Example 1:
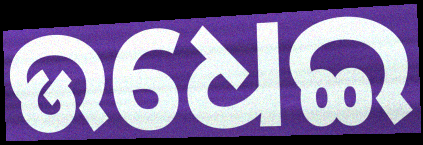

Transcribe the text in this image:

ଉଧେଇ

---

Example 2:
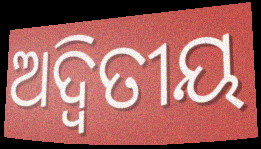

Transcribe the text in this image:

ଅଦ୍ୱିତୀୟ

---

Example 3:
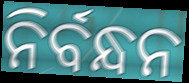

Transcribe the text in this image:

ନିର୍ବନ୍ଧନ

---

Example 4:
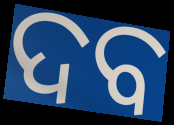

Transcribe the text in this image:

ଦବ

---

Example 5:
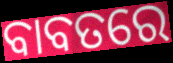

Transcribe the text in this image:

ବାବତରେ